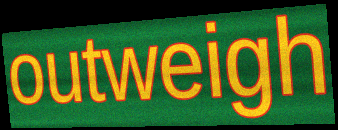
outweigh